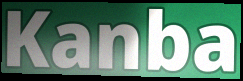
Kanba